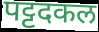
पट्टदकल